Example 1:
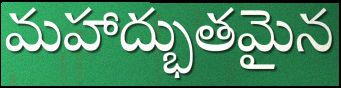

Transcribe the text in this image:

మహాద్భుతమైన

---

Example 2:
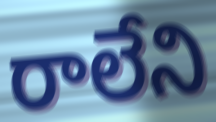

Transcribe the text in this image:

రాలేని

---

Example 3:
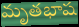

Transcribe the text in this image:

మృతభాష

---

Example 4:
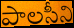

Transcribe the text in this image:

పాలసీని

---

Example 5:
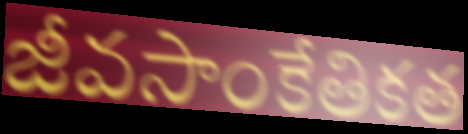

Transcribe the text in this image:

జీవసాంకేతికత